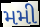
મમી